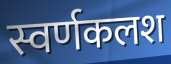
स्वर्णकलश